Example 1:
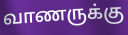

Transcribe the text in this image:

வாணருக்கு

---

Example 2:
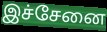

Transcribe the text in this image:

இச்சேனை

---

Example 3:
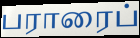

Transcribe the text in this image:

பராரைப்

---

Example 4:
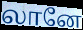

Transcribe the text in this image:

லானே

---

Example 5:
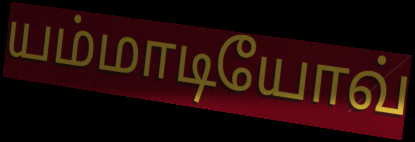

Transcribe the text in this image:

யம்மாடியோவ்